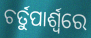
ଚର୍ତୁପାର୍ଶ୍ବରେ